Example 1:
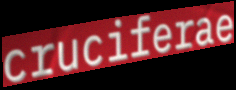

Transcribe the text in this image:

cruciferae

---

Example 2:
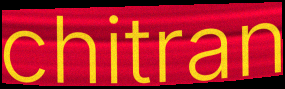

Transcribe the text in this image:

chitran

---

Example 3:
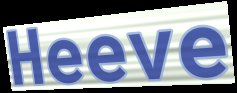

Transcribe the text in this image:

Heeve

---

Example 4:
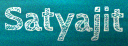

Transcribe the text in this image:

Satyajit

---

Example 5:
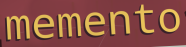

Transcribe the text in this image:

memento